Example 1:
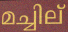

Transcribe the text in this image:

മച്ചില്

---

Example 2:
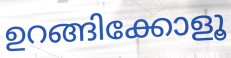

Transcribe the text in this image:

ഉറങ്ങിക്കോളൂ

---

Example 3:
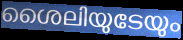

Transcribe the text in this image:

ശൈലിയുടേയും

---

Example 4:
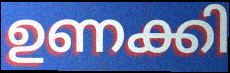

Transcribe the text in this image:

ഉണക്കി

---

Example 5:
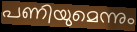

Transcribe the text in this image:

പണിയുമെന്നും